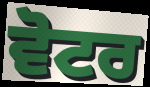
ਵੋਟਰ